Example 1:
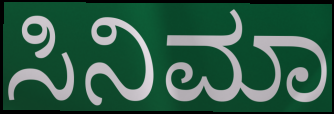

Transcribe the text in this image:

ಸಿನಿಮಾ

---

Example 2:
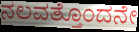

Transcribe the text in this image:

ನಲವತ್ತೊಂದನೇ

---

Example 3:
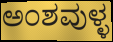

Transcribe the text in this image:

ಅಂಶವುಳ್ಳ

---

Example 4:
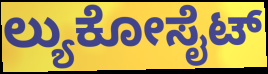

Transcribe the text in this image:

ಲ್ಯುಕೋಸೈಟ್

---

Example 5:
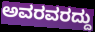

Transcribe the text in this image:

ಅವರವರದ್ದು